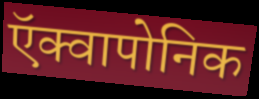
ऍक्वापोनिक